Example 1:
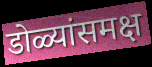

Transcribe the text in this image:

डोळ्यांसमक्ष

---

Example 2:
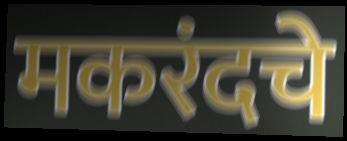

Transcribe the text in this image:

मकरंदचे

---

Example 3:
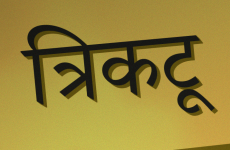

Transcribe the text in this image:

त्रिकटू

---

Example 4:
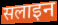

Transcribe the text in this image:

सलाइन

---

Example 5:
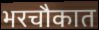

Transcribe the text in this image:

भरचौकात